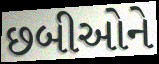
છબીઓને